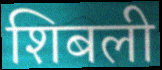
शिबली